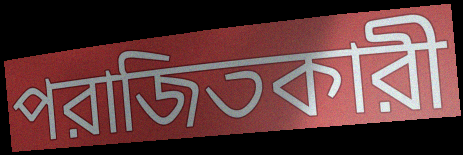
পরাজিতকারী